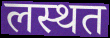
लस्थत